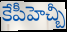
కేపీహెచ్బీ